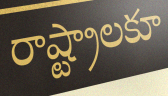
రాష్ట్రాలకూ